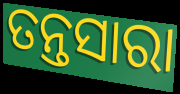
ତନ୍ତସାରା